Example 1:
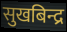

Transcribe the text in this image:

सुखबिन्द्र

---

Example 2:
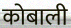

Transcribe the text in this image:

कोबाली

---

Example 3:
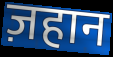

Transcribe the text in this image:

ज़हान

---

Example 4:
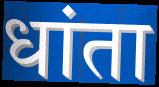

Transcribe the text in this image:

धांता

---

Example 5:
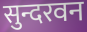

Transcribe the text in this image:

सुन्दरवन